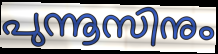
പുന്നൂസിനും